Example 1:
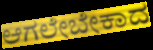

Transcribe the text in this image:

ಆಗಲೇಬೇಕಾದ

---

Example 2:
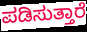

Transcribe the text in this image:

ಪಡಿಸುತ್ತಾರೆ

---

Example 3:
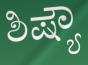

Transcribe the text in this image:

ಶಿಷ್ಯೌ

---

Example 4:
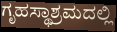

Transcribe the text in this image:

ಗೃಹಸ್ಥಾಶ್ರಮದಲ್ಲಿ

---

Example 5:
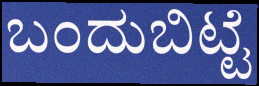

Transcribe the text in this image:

ಬಂದುಬಿಟ್ಟೆ